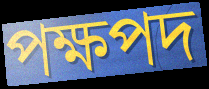
পক্ষপদ